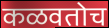
कळवतोच